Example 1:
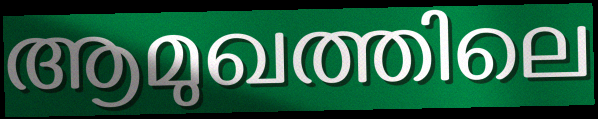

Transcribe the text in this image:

ആമുഖത്തിലെ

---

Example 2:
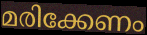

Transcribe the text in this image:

മരിക്കേണം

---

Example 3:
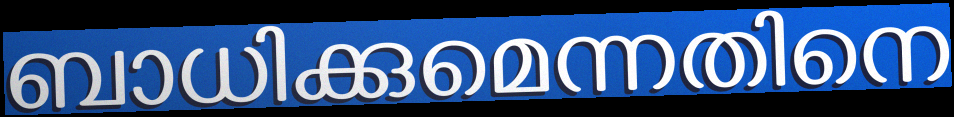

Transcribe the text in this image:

ബാധിക്കുമെന്നതിനെ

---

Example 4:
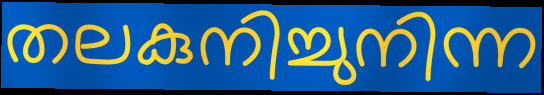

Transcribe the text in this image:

തലകുനിച്ചുനിന്ന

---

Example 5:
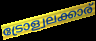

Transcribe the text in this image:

ട്രോള്വലക്കാര്